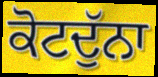
ਕੋਟਦੁੱਨਾ